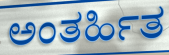
ಅಂತರ್ಹಿತ